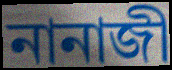
নানাজী